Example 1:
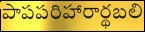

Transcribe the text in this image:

పాపపరిహారార్థబలి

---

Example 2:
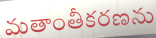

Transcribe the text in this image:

మతాంతీకరణను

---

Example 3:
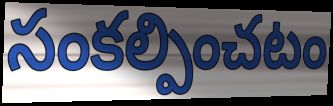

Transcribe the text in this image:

సంకల్పించటం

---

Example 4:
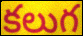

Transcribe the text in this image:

కలుగ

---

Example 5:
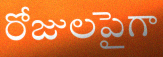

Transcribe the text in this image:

రోజులపైగా